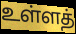
உள்ளத்